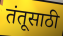
तंतूसाठी